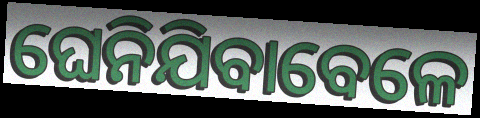
ଘେନିଯିବାବେଳେ